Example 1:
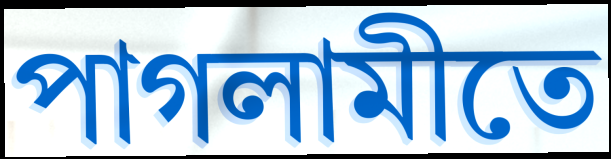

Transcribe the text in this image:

পাগলামীতে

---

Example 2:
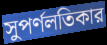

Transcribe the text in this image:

সুপর্ণলতিকার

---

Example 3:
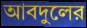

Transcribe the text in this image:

আবদুলের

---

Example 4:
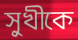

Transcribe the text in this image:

সুখীকে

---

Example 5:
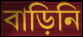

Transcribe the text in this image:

বাড়িনি